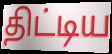
திட்டிய